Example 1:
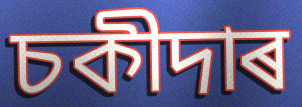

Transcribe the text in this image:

চকীদাৰ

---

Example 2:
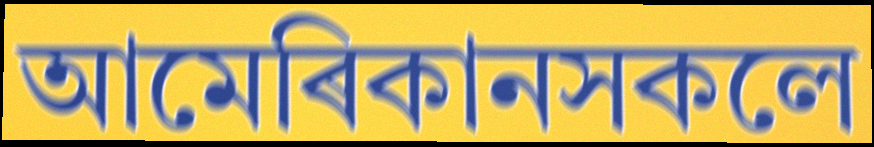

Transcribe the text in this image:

আমেৰিকানসকলে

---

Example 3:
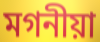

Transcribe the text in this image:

মগনীয়া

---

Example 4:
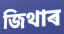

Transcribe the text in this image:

জিথাৰ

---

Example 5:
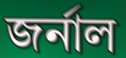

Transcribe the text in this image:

জৰ্নাল